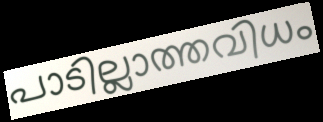
പാടില്ലാത്തവിധം